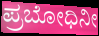
ಪ್ರಬೋಧಿನೀ